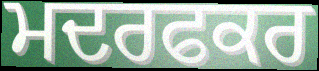
ਮਦਰਫਕਰ